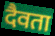
दैवता